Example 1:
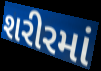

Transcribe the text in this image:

શરીરમાં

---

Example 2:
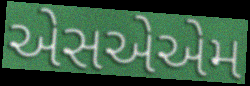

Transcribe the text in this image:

એસએએમ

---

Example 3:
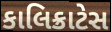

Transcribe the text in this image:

કાલિક્રાટેસ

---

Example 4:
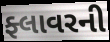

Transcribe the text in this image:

ફ્લાવરની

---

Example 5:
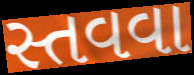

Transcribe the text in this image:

સ્તવવા